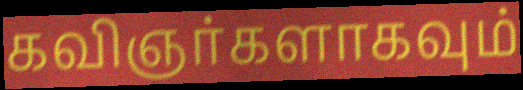
கவிஞர்களாகவும்